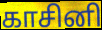
காசினி